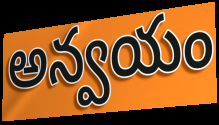
అన్వయం